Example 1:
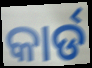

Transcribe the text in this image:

କାର୍ଡ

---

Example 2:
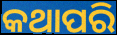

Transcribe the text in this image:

କଥାପରି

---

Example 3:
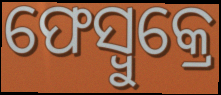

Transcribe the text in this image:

ଫେସ୍ବୁକ୍ରେ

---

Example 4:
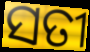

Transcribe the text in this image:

ସତୀ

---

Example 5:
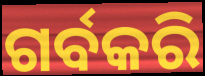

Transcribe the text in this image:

ଗର୍ବକରି